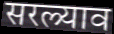
सरल्याव